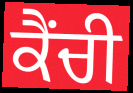
ਕੈਂਚੀ